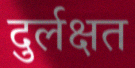
दुर्लक्षत